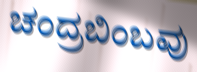
ಚಂದ್ರಬಿಂಬವು